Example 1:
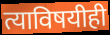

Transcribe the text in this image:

त्याविषयीही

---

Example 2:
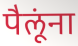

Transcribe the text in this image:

पैलूंना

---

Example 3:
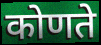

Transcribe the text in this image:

कोणते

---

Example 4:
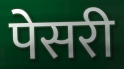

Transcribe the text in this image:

पेसरी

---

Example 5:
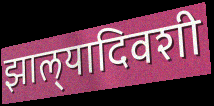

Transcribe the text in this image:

झाल्यादिवशी